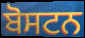
ਬੋਸਟਨ